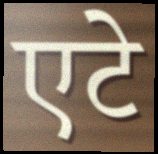
एटे